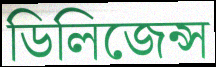
ডিলিজেন্স